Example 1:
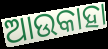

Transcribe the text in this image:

ଆଉକାହା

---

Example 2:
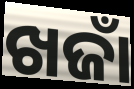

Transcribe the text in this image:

ଖଜାଁ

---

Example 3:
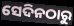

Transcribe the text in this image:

ସେଦିନଠାରୁ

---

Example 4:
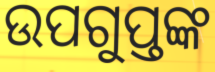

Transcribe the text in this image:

ଉପଗୁପ୍ତଙ୍କ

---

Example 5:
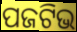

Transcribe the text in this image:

ପଜଟିଭ